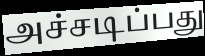
அச்சடிப்பது